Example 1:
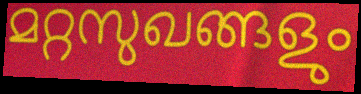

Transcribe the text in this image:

മറ്റസുഖങ്ങളും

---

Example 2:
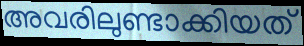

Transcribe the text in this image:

അവരിലുണ്ടാക്കിയത്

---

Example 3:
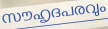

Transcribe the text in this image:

സൗഹൃദപരവും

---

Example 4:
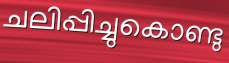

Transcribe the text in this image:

ചലിപ്പിച്ചുകൊണ്ടു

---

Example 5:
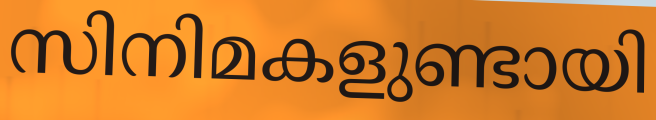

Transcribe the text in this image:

സിനിമകളുണ്ടായി